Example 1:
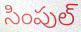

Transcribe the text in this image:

సింపుల్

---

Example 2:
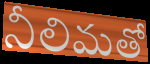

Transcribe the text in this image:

నీలిమతో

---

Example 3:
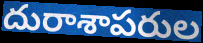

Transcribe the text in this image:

దురాశాపరుల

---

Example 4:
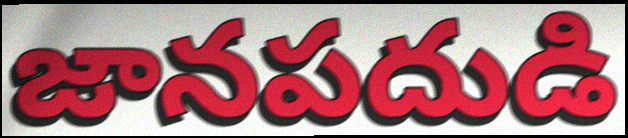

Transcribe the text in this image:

జానపదుడి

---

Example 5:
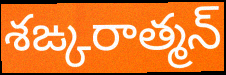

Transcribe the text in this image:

శఙ్కరాత్మన్